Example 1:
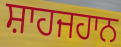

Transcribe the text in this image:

ਸ਼ਾਹਜਹਾਨ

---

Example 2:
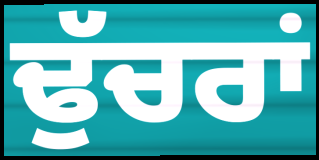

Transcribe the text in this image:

ਢੁੱਚਰਾਂ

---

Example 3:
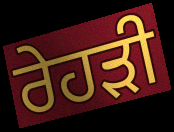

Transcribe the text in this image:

ਰੇਹੜੀ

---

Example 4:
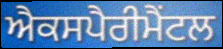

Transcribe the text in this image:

ਐਕਸਪੈਰੀਮੈਂਟਲ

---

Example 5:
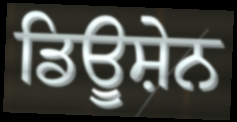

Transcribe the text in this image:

ਡਿਊਸ਼ੇਨ